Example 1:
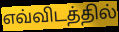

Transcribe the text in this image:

எவ்விடத்தில்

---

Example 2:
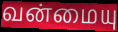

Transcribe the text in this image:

வன்மையு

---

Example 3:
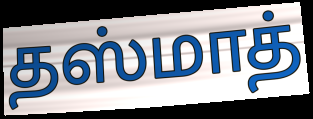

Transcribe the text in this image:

தஸ்மாத்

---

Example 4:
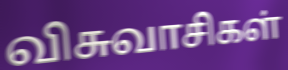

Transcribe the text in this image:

விசுவாசிகள்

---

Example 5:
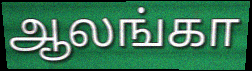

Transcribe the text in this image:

ஆலங்கா